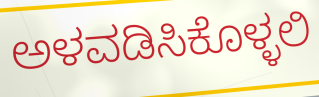
ಅಳವಡಿಸಿಕೊಳ್ಳಲಿ